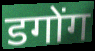
डगोंग